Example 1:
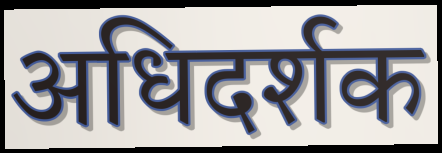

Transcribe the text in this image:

अधिदर्शक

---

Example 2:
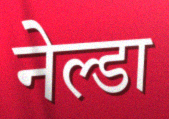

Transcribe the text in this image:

नेल्डा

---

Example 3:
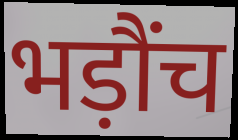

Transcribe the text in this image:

भड़ौंच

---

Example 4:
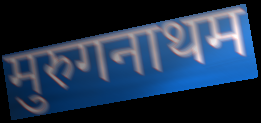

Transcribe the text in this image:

मुरुगनाथम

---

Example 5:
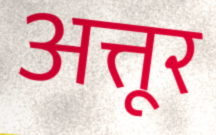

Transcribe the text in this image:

अत्तूर